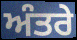
ਅੰਤਰੇ